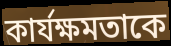
কার্যক্ষমতাকে